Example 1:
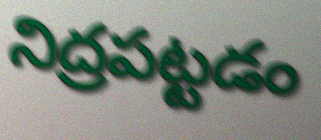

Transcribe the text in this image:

నిద్రపట్టడం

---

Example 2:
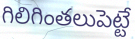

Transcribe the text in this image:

గిలిగింతలుపెట్టే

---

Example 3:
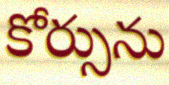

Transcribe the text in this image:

కోర్సును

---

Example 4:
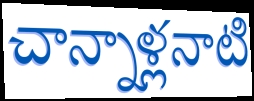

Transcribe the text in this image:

చాన్నాళ్లనాటి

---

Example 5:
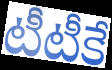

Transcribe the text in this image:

టీటీకే